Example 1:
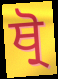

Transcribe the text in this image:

ਥ੍ਰੋ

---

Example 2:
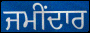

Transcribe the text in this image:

ਜਮੀਂਦਾਰ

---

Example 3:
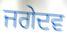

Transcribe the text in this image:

ਜਗੇਦਵ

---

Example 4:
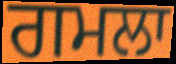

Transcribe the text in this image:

ਗਮਲਾ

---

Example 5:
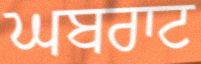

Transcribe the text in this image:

ਘਬਰਾਟ